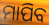
ମାପିବ